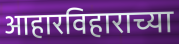
आहारविहाराच्या